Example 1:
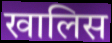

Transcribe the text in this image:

खालिस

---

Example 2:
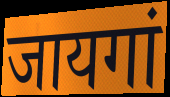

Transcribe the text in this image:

जायगां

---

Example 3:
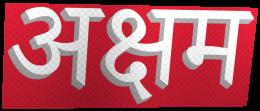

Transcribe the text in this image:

अक्षम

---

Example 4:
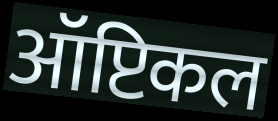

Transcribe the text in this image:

ऑप्टिकल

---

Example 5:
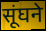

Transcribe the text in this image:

सूंघने